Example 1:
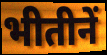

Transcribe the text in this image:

भीतीनें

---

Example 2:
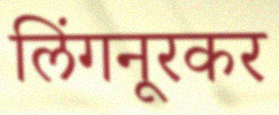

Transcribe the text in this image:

लिंगनूरकर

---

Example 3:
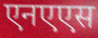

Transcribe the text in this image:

एनएएस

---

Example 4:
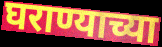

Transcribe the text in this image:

घराण्याच्या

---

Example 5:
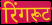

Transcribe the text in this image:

रिंगरूट